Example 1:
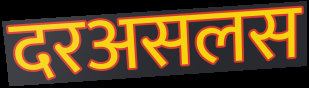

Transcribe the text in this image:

दरअसलस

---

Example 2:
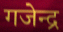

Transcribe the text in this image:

गजेन्द्र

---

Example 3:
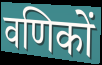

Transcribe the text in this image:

वणिकों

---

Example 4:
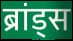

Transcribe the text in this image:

ब्रांड्स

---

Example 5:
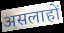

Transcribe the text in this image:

असलाहों